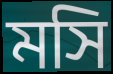
মসি